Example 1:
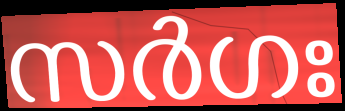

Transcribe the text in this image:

സർഗഃ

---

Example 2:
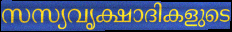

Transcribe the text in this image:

സസ്യവൃക്ഷാദികളുടെ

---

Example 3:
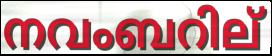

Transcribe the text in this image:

നവംബറില്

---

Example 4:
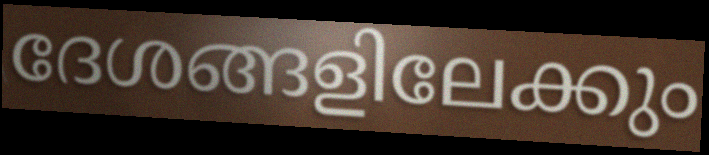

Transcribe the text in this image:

ദേശങ്ങളിലേക്കും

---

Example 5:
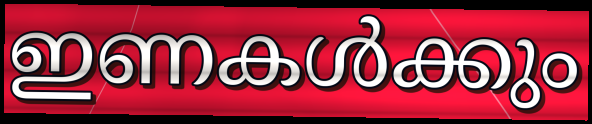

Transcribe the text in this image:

ഇണകൾക്കും